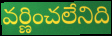
వర్ణించలేనిది